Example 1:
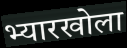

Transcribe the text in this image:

भ्यारखोला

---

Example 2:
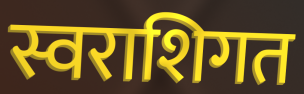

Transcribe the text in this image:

स्वराशिगत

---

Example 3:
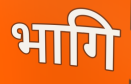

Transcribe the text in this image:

भागि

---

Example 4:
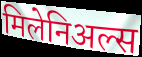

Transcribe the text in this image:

मिलेनिअल्स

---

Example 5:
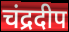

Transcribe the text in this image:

चंद्रदीप